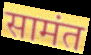
सामंत